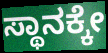
ಸ್ಥಾನಕ್ಕೇ